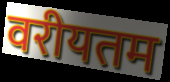
वरीयतम